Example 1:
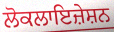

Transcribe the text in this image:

ਲੋਕਲਾਇਜ਼ੇਸ਼ਨ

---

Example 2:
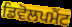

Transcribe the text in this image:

ਡਿਵੋਲਪਮੈਂਟ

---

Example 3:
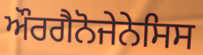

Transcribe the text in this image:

ਔਰਗੈਨੋਜੇਨੇਸਿਸ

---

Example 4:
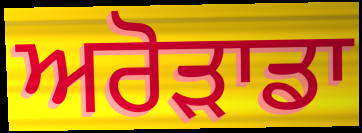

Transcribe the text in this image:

ਅਰੋੜਾਡਾ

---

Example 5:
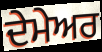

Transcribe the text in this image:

ਦੇਮੇਅਰ